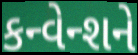
કન્વેન્શને